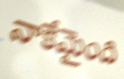
నాకేమైంది